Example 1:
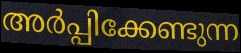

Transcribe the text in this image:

അർപ്പിക്കേണ്ടുന്ന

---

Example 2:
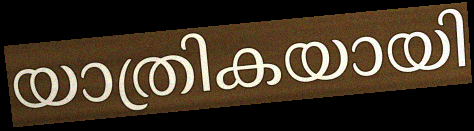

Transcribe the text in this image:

യാത്രികയായി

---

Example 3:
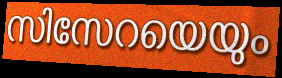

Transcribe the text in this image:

സിസേറയെയും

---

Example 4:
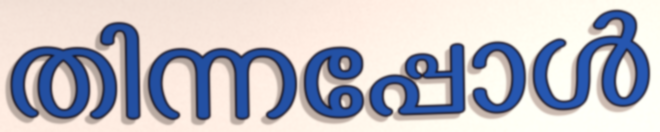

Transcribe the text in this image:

തിന്നപ്പോൾ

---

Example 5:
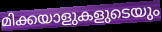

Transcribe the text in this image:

മിക്കയാളുകളുടെയും